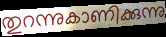
തുറന്നുകാണിക്കുന്നു